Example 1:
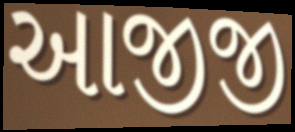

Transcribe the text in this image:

આજીજી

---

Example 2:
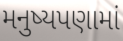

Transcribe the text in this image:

મનુષ્યપણામાં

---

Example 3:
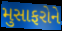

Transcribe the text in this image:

મુસાફરોને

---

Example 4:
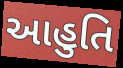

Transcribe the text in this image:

આહુતિ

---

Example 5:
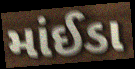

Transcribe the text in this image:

માંઈડા